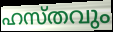
ഹസ്തവും